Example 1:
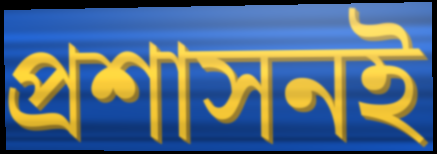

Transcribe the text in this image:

প্রশাসনই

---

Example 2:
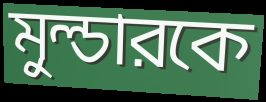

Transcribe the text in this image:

মুল্ডারকে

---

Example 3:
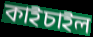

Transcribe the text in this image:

কাইচাইল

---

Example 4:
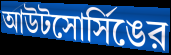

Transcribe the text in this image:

আউটসোর্সিঙের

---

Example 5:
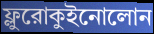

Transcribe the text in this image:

ফ্লুরোকুইনোলোন